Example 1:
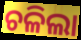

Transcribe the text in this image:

ଚଳିଲା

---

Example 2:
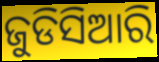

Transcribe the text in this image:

ଜୁଡିସିଆରି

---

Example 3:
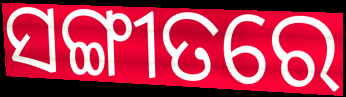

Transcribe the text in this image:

ସଙ୍ଗୀତରେ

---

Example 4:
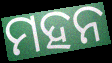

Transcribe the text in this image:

ମହନ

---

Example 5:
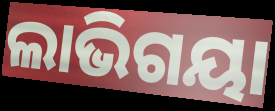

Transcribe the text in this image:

ଲାଭିଗୟା